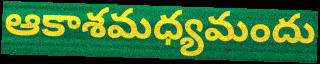
ఆకాశమధ్యమందు